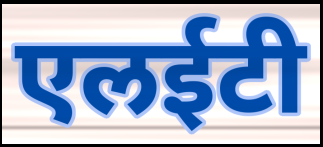
एलईटी